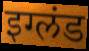
इग्लंड